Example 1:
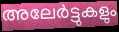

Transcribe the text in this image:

അലേർട്ടുകളും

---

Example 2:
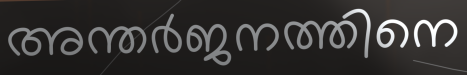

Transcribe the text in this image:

അന്തർജനത്തിനെ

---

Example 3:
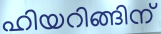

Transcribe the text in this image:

ഹിയറിങ്ങിന്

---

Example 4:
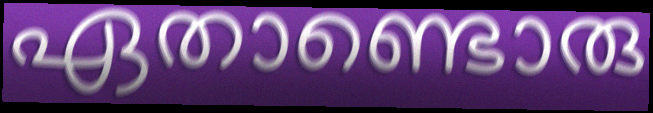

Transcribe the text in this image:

ഏതാണ്ടൊരു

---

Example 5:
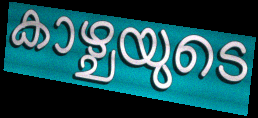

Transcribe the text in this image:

കാഴ്ചയുടെ